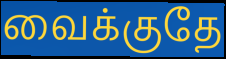
வைக்குதே